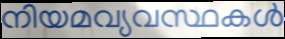
നിയമവ്യവസ്ഥകൾ